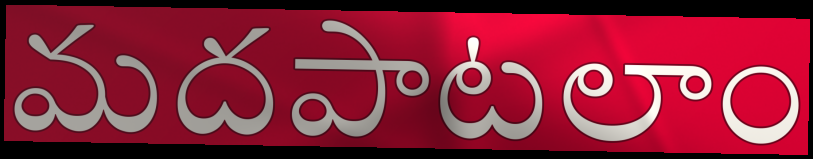
మదపాటలాం